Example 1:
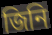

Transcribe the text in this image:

জিনি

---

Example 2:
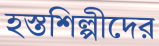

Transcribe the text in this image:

হস্তশিল্পীদের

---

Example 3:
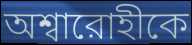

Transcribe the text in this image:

অশ্বারোহীকে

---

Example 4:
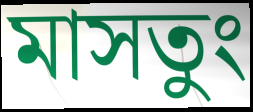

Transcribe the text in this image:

মাসতুং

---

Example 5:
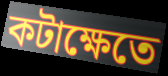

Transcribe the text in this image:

কটাক্ষেতে